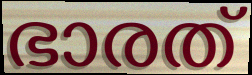
ഭാരത്